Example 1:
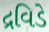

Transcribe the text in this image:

દ્રવિડે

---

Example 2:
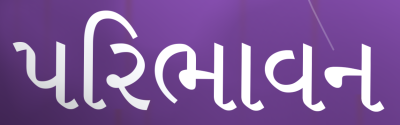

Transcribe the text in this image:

પરિભાવન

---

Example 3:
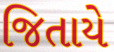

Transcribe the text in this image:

જિતાયે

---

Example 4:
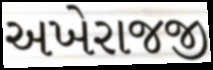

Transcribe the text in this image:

અખેરાજજી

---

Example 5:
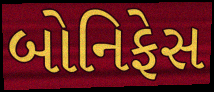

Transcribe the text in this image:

બોનિફેસ